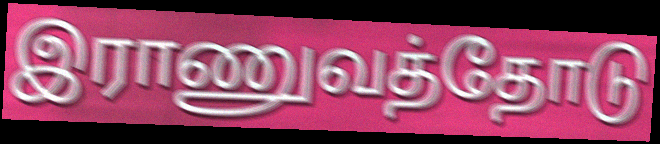
இராணுவத்தோடு